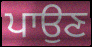
ਪਾਉਣ